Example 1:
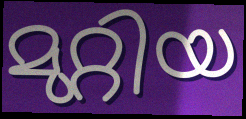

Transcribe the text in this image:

മുറ്റിയ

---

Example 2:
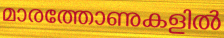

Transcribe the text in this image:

മാരത്തോണുകളിൽ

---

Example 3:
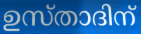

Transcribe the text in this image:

ഉസ്താദിന്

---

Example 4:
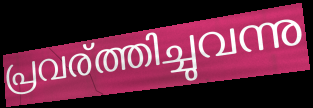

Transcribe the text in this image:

പ്രവര്ത്തിച്ചുവന്നു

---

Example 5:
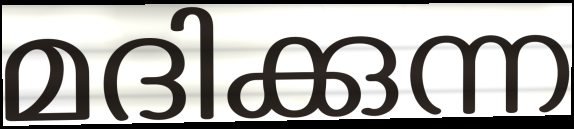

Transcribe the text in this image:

മദിക്കുന്ന